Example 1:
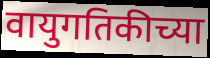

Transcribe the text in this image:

वायुगतिकीच्या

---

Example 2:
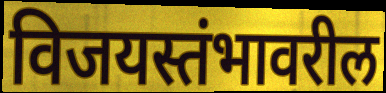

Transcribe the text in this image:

विजयस्तंभावरील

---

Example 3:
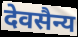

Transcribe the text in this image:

देवसैन्य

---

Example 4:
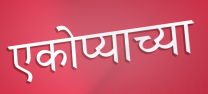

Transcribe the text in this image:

एकोप्याच्या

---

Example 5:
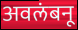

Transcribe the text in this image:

अवलंबनू